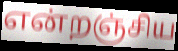
என்றஞ்சிய